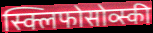
स्क्लिफोसोव्स्की